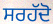
ਸਰਹੱਦੋ